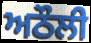
ਅਠੌਲੀ